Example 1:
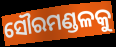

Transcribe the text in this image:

ସୌରମଣ୍ଡଳକୁ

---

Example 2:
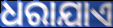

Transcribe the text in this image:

ଧରାଯାଏ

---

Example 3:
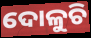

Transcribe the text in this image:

ଦୋଳୁଚି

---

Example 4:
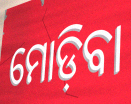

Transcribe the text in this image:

ମୋଡ଼ିବା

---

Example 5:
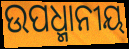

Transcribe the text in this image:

ଉପଧ୍ମାନୀୟ